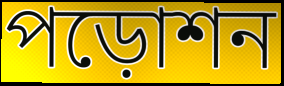
পড়োশন